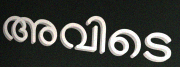
അവിടെ